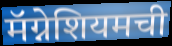
मॅग्नेशियमची